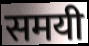
समयी